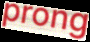
prong